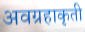
अवग्रहाकृती